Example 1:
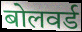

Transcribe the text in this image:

बोलवर्ड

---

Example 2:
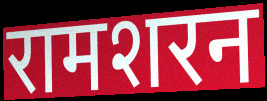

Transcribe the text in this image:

रामशरन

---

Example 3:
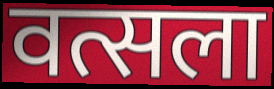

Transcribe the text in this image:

वत्सला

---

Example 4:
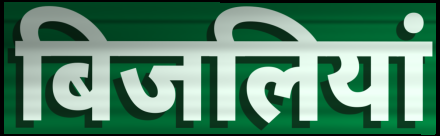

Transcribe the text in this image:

बिजलियां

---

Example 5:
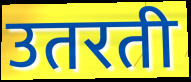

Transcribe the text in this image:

उतरती